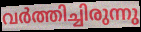
വർത്തിച്ചിരുന്നു